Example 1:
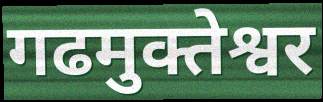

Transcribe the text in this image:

गढमुक्तेश्वर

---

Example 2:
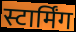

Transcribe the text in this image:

स्टार्मिंग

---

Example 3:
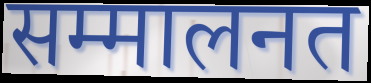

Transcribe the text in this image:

सम्मालनत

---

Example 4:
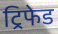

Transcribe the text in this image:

ट्रिफेड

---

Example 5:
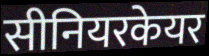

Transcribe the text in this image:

सीनियरकेयर